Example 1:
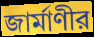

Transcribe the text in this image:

জার্মাণীর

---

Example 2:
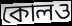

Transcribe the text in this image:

কোলও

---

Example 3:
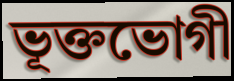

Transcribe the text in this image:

ভূক্তভোগী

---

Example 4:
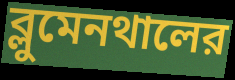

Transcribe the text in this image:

ব্লুমেনথালের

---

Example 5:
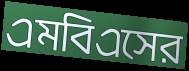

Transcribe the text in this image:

এমবিএসের